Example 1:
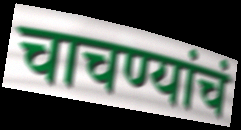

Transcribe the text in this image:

चाचण्यांचं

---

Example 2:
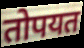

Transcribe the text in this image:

तोपयत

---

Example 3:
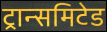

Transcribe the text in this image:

ट्रान्समिटेड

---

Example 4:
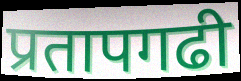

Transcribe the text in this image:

प्रतापगढी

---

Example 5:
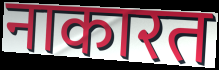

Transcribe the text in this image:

नाकारत